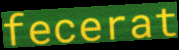
fecerat